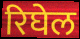
रिघेल